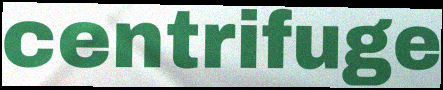
centrifuge